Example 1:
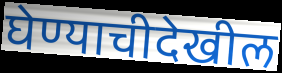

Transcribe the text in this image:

घेण्याचीदेखील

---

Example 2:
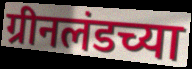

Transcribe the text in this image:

ग्रीनलंडच्या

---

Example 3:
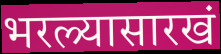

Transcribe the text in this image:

भरल्यासारखं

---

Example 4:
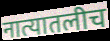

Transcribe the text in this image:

नात्यातलीच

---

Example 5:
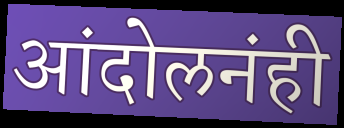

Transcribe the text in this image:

आंदोलनंही